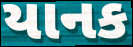
યાનક